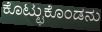
ಕೊಟ್ಟುಕೊಂಡನು